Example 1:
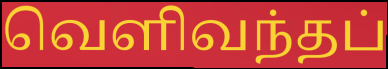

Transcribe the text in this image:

வெளிவந்தப்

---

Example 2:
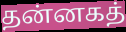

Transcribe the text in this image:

தன்னகத்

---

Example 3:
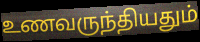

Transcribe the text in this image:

உணவருந்தியதும்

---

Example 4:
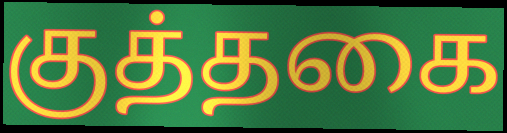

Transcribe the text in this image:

குத்தகை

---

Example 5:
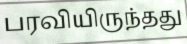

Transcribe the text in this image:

பரவியிருந்தது